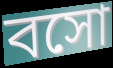
বসো